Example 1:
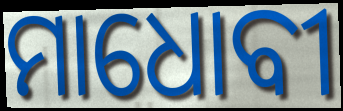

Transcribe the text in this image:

ମାଧୋବୀ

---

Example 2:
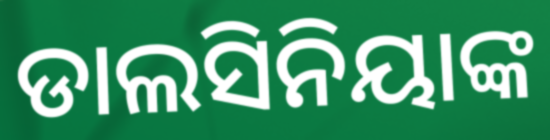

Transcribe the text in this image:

ଡାଲସିନିୟାଙ୍କ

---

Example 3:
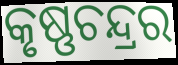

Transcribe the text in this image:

କୃଷ୍ଣଚନ୍ଦ୍ରର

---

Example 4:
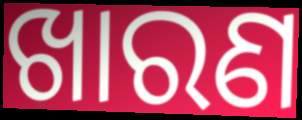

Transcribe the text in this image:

ଖାରଣ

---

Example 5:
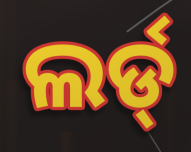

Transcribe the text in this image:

ଲର୍ଡ୍